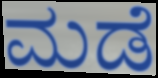
ಮಡೆ